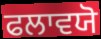
ਫਲਾਵਯੋ